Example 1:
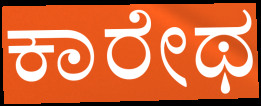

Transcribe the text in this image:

ಕಾರೇಥ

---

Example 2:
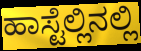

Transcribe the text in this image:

ಹಾಸ್ಟೆಲ್ಲಿನಲ್ಲಿ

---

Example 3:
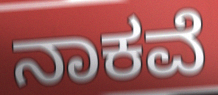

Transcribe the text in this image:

ನಾಕವೆ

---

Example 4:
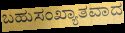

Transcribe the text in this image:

ಬಹುಸಂಖ್ಯಾತವಾದ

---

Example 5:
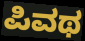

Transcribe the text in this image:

ಪಿವಥ